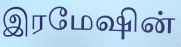
இரமேஷின்